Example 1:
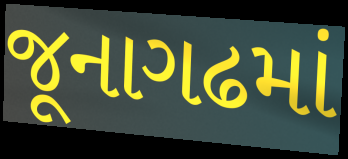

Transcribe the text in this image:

જૂનાગઢમાં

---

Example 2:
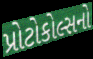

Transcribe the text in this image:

પ્રોટોકોલ્સનો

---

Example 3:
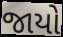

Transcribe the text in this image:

જાયો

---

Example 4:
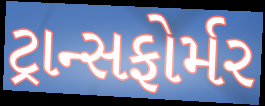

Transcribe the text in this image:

ટ્રાન્સફોર્મર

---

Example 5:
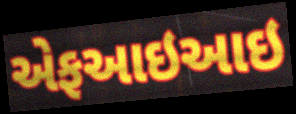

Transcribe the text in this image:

એફઆઇઆઇ